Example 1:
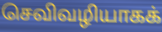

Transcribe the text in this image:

செவிவழியாகக்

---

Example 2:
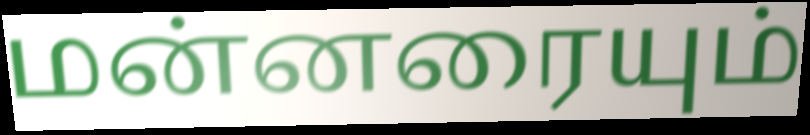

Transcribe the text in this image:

மன்னரையும்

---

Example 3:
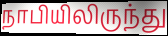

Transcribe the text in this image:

நாபியிலிருந்து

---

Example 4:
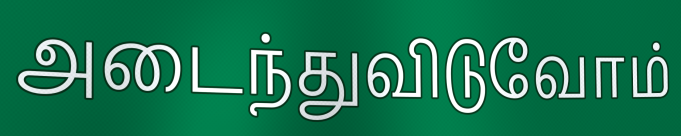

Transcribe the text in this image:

அடைந்துவிடுவோம்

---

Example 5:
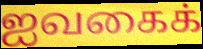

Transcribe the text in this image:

ஐவகைக்